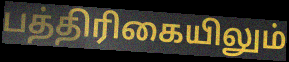
பத்திரிகையிலும்